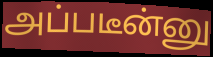
அப்படீன்னு